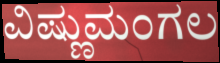
ವಿಷ್ಣುಮಂಗಲ